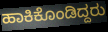
ಹಾಕಿಕೊಂಡಿದ್ದರು